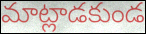
మాట్లాడకుండ